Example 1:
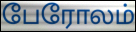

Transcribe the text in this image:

பேரோலம்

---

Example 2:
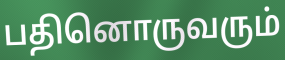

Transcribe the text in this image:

பதினொருவரும்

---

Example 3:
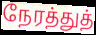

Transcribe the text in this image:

நேரத்துத்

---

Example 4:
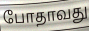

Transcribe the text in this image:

போதாவது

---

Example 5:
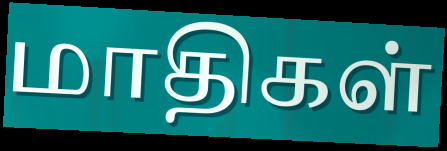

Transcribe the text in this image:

மாதிகள்